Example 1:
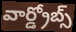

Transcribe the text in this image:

వార్డ్రోబ్స్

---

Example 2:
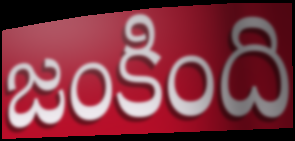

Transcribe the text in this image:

జంకింది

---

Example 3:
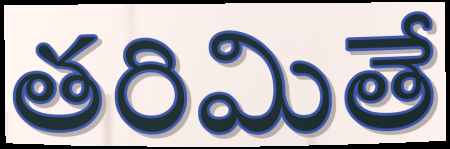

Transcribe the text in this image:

తరిమితే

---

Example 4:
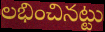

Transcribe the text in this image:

లభించినట్టు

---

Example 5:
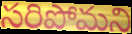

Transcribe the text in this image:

సరిపోమని